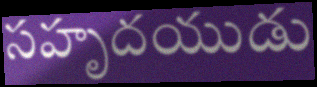
సహృదయుడు